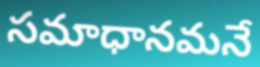
సమాధానమనే